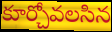
కూర్చోవలసిన